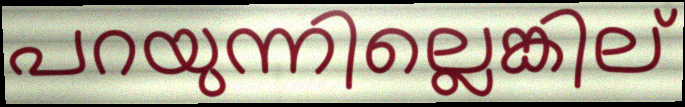
പറയുന്നില്ലെങ്കില്